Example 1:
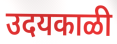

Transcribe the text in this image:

उदयकाळी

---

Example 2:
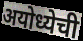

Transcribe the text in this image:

अयोध्येची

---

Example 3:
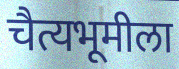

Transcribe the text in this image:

चैत्यभूमीला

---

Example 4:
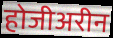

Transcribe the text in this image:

होजीअरीन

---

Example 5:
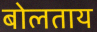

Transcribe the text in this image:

बोलताय